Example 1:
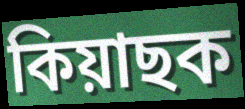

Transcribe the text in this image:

কিয়াছক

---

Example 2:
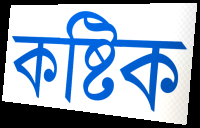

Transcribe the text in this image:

কষ্টিক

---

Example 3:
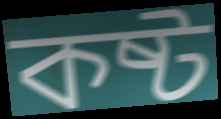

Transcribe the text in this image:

কষ্ট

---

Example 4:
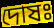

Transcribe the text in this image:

দোষঃ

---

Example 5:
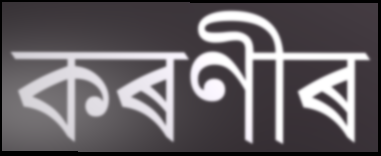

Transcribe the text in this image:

কৰণীৰ